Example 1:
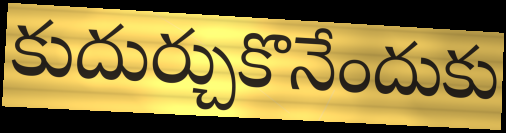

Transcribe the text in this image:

కుదుర్చుకొనేందుకు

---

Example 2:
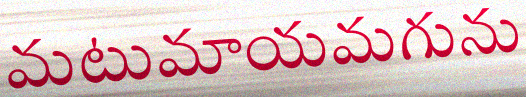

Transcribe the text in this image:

మటుమాయమగును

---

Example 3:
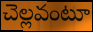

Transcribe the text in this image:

చెల్లవంటూ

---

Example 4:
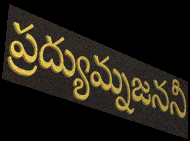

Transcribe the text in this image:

ప్రద్యుమ్నజననీ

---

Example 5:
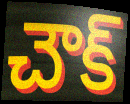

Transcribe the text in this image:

చౌక్